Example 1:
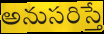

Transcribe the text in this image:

అనుసరిస్తే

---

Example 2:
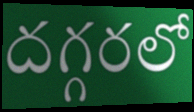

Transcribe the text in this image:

దగ్గరలో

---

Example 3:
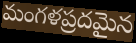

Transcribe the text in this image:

మంగళప్రదమైన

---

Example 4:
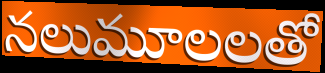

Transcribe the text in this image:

నలుమూలలతో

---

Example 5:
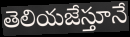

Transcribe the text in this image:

తెలియజేస్తూనే